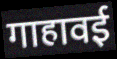
गाहावई